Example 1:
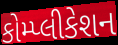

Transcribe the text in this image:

કોમ્પ્લીકેશન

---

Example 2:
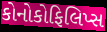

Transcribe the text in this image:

કોનોકોફિલિપ્સ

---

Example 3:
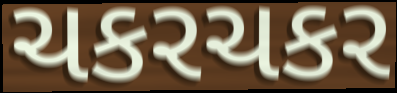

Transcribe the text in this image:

ચકરચકર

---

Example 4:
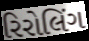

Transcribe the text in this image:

રિરોલિંગ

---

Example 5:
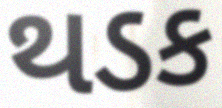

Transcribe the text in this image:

થડક